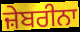
ਜ਼ੇਬਰੀਨਾ